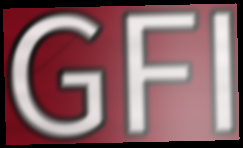
GFI